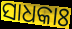
ସାଧକାଃ